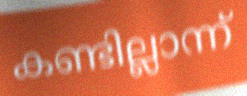
കണ്ടില്ലാന്ന്